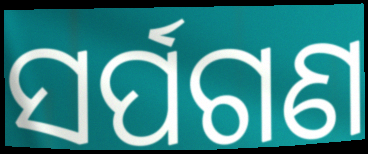
ସର୍ପଗଣ